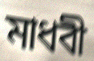
মাধবী